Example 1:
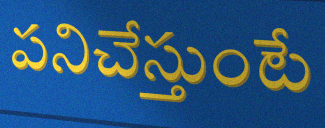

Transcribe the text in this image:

పనిచేస్తుంటే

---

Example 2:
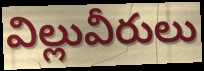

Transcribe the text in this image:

విల్లువీరులు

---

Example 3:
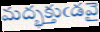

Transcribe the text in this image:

మద్భక్తుఁడవై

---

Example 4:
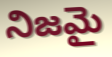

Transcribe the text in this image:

నిజమై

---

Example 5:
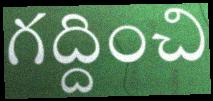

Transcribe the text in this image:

గద్దించి